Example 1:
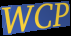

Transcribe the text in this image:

WCP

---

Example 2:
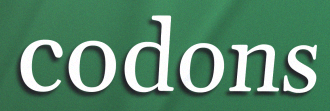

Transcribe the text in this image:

codons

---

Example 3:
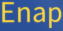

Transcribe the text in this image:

Enap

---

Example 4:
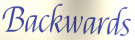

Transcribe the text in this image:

Backwards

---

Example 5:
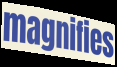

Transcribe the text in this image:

magnifies